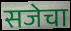
सजेचा